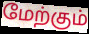
மேற்கும்